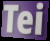
Tei